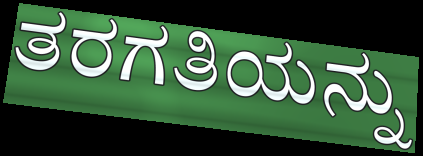
ತರಗತಿಯನ್ನು